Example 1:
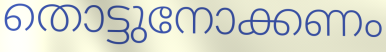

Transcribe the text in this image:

തൊട്ടുനോക്കണം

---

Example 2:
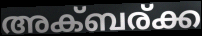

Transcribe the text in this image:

അക്ബര്ക്ക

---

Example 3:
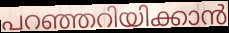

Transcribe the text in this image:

പറഞ്ഞറിയിക്കാൻ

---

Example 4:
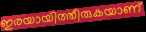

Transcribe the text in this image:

ഇരയായിത്തീരുകയാണ്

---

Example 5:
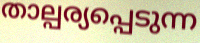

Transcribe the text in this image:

താല്പര്യപ്പെടുന്ന